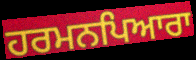
ਹਰਮਨਪਿਆਰਾ